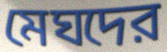
মেঘদের